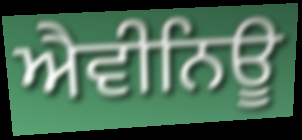
ਐਵੀਨਿਊ